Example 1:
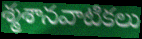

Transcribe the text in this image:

శ్మశానవాటికలు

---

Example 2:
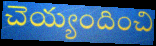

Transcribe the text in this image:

చెయ్యందించి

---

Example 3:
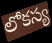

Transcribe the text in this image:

లోకస్య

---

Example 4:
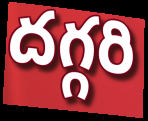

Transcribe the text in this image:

దగ్గరి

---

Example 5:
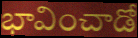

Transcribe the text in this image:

భావించాడో